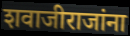
शवाजीराजांना